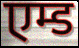
एम्ड